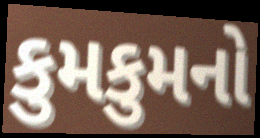
કુમકુમનો